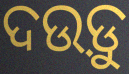
ଦଉଡ଼ୁ